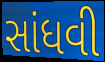
સાંધવી